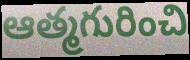
ఆత్మగురించి